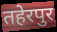
तहेरपुर